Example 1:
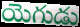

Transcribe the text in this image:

యెగుడు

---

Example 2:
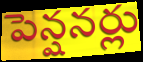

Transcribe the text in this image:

పెన్షనర్లు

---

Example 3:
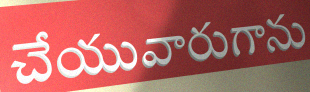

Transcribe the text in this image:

చేయువారుగాను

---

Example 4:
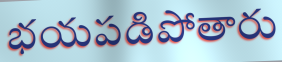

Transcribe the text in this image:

భయపడిపోతారు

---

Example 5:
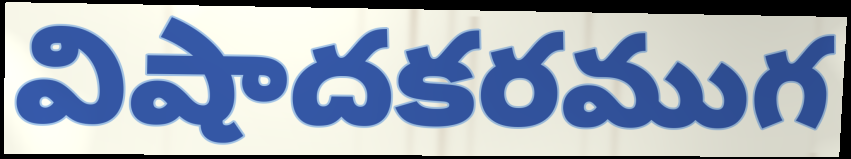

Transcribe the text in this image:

విషాదకరముగ